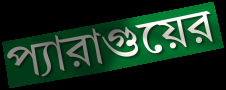
প্যারাগুয়ের